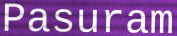
Pasuram